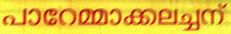
പാറേമ്മാക്കലച്ചന്